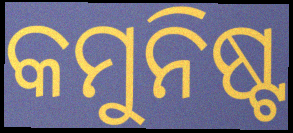
କମୁନିଷ୍ଟ